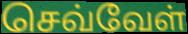
செவ்வேள்